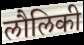
लौलिकी